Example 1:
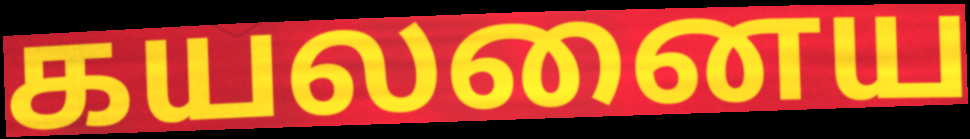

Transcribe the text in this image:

கயலனைய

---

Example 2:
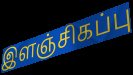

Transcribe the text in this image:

இளஞ்சிகப்பு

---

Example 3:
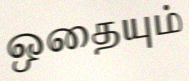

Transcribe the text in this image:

ஒதையும்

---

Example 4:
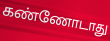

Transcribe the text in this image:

கண்ணோடாது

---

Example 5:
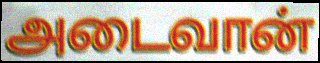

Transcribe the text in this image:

அடைவான்